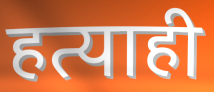
हत्याही